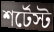
শর্টেস্ট